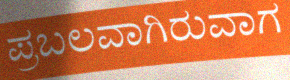
ಪ್ರಬಲವಾಗಿರುವಾಗ